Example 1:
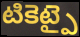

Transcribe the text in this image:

టికెట్పై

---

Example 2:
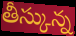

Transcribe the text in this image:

తీస్కున్న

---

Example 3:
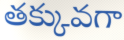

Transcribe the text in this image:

తక్కువగా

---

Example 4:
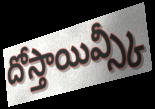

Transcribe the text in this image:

దోస్తాయివ్స్కీ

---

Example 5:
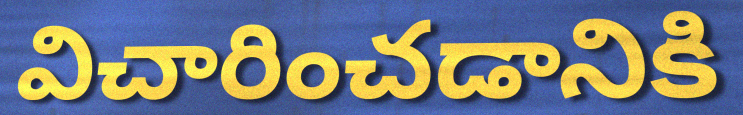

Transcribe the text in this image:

విచారించడానికి